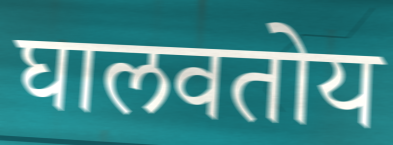
घालवतोय